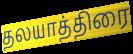
தலயாத்திரை